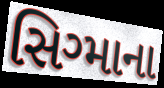
સિગ્માના